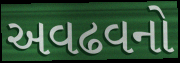
અવઢવનો